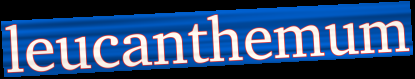
leucanthemum